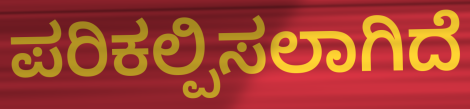
ಪರಿಕಲ್ಪಿಸಲಾಗಿದೆ